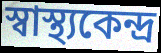
স্বাস্থ্যকেন্দ্র